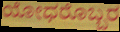
ಯೋಧರೊಬ್ಬರ